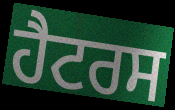
ਹੈਟਰਸ